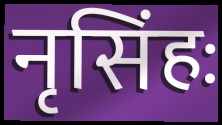
नृसिंहः